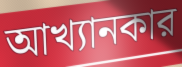
আখ্যানকার